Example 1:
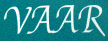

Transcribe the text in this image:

VAAR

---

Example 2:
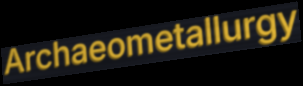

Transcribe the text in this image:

Archaeometallurgy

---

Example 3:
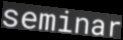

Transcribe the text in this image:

seminar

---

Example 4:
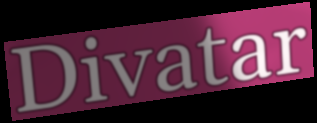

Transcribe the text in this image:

Divatar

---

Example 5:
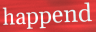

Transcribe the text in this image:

happend